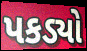
પકડ્યો